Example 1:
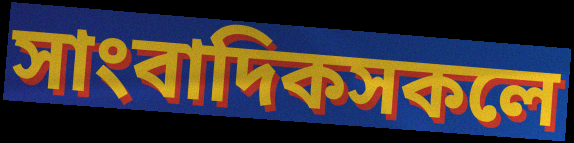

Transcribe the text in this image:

সাংবাদিকসকলে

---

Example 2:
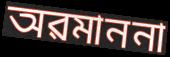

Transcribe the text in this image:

অৱমাননা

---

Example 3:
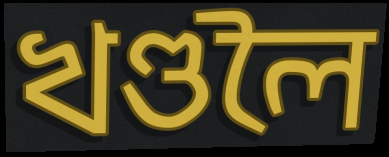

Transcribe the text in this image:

খণ্ডলৈ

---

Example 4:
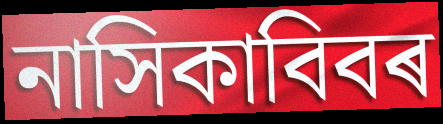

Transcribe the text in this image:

নাসিকাবিবৰ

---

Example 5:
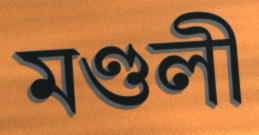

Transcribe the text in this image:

মণ্ডলী